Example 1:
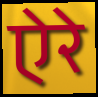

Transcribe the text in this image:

ऐरे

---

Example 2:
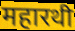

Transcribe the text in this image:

महारथी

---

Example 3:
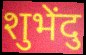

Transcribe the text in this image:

शुभेंदु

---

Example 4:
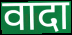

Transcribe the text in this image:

वादा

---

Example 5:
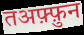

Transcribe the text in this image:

तअफ़्फ़ुन